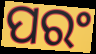
ପରଂ